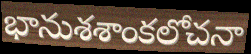
భానుశశాంకలోచనా